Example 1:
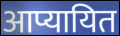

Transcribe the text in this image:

आप्यायित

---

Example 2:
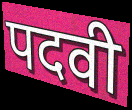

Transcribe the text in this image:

पदवी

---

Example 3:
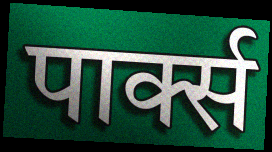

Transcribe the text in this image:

पार्क्स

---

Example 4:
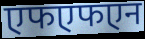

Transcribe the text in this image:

एफएफएन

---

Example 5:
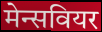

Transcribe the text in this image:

मेन्सवियर